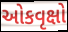
ઓકવૃક્ષો